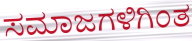
ಸಮಾಜಗಳಿಗಿಂತ